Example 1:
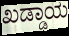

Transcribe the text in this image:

ಖಡ್ಡಾಯ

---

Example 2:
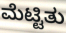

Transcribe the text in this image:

ಮೆಟ್ಟಿತು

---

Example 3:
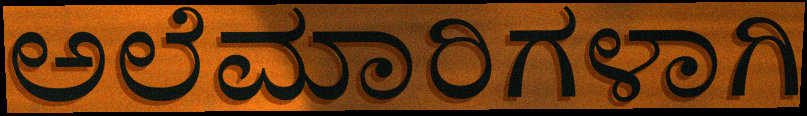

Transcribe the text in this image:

ಅಲೆಮಾರಿಗಳಾಗಿ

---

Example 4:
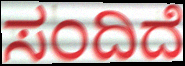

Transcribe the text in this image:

ಸಂದಿದೆ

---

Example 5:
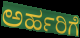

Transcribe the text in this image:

ಅರ್ಹರಿಗೆ